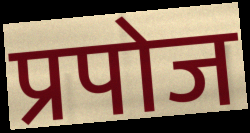
प्रपोज